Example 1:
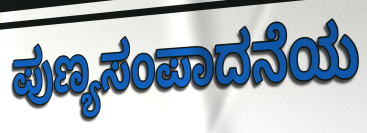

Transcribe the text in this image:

ಪುಣ್ಯಸಂಪಾದನೆಯ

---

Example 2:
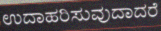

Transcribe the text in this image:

ಉದಾಹರಿಸುವುದಾದರೆ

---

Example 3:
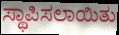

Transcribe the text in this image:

ಸ್ಥಾಪಿಸಲಾಯಿತು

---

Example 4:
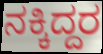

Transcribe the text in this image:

ನಕ್ಕಿದ್ದರ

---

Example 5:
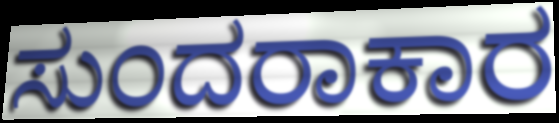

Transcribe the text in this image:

ಸುಂದರಾಕಾರ